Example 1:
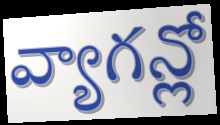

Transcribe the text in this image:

వ్యాగన్లో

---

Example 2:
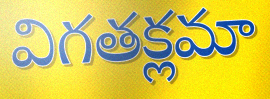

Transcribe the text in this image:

విగతక్లమా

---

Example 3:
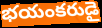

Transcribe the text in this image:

భయంకరుడై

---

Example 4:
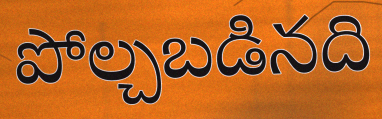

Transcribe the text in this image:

పోల్చబడినది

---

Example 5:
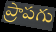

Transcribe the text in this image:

ప్రాపగు